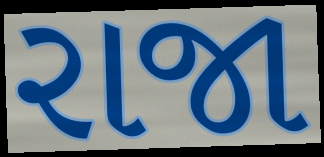
રાજા